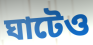
ঘাটেও